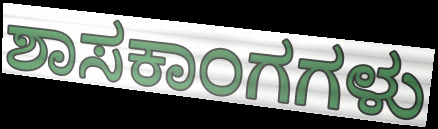
ಶಾಸಕಾಂಗಗಳು